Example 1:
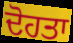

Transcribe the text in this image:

ਦੋਹਤਾ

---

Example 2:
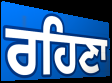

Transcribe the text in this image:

ਰਹਿਣਾ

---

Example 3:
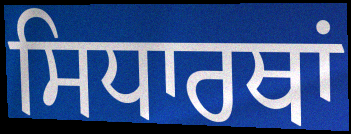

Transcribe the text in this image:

ਸਿਧਾਰਥਾਂ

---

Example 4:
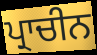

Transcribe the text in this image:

ਪ੍ਰਾਚੀਨ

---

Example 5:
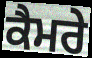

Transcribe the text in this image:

ਕੈਮਰੇ